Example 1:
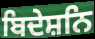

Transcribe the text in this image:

ਬਿਦੇਸ਼ਨਿ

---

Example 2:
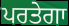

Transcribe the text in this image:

ਪਰਤੇਗਾ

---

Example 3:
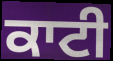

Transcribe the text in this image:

ਕਾਟੀ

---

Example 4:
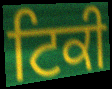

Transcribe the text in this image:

ਟਿਕੀ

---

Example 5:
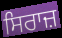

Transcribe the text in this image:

ਸਿਰਾਜ਼